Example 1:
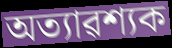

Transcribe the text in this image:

অত্যাৱশ্যক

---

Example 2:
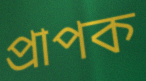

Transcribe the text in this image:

প্ৰাপক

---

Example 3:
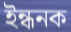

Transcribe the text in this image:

ইন্ধনক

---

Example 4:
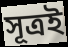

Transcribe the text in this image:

সূত্ৰই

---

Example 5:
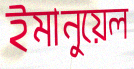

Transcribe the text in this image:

ইমানুয়েল